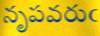
నృపవరుఁ